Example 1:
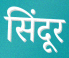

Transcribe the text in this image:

सिंदूर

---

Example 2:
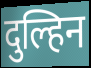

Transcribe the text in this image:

दुल्हिन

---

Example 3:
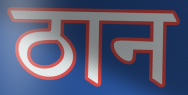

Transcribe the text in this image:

ठान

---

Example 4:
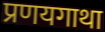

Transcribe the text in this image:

प्रणयगाथा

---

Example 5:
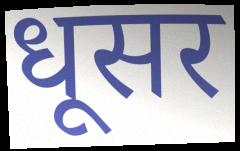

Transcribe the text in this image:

धूसर